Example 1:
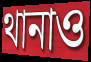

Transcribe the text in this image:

থানাও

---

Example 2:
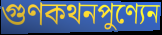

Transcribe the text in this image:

গুণকথনপুণ্যেন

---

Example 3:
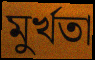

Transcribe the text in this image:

মুর্খতা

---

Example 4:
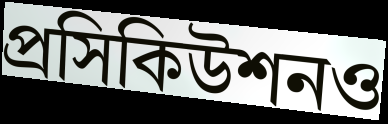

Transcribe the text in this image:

প্রসিকিউশনও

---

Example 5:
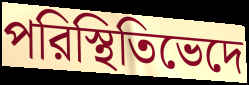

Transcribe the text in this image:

পরিস্থিতিভেদে